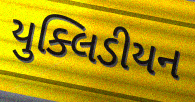
યુક્લિડીયન